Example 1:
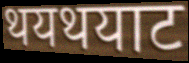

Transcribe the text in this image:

थयथयाट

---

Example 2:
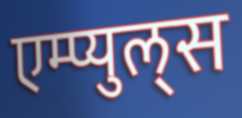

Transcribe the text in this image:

एम्प्युल्स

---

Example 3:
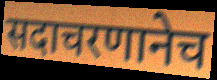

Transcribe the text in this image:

सदाचरणानेच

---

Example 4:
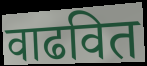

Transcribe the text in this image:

वाढवित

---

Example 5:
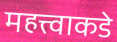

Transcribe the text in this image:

महत्त्वाकडे